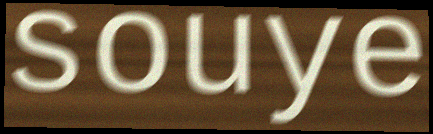
souye